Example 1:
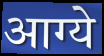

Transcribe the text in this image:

आग्ये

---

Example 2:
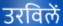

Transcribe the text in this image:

उरविलें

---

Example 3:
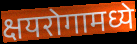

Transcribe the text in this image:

क्षयरोगामध्ये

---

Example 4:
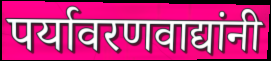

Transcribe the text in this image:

पर्यावरणवाद्यांनी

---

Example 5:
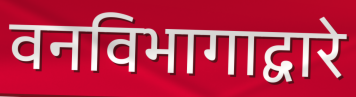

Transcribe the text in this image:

वनविभागाद्वारे